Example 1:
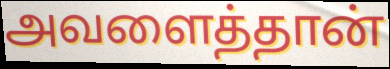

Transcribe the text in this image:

அவளைத்தான்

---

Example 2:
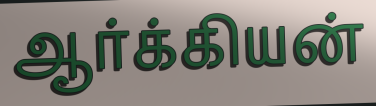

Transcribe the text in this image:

ஆர்க்கியன்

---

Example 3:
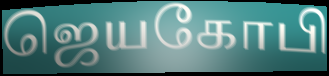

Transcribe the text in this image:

ஜெயகோபி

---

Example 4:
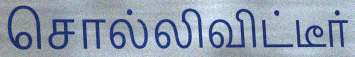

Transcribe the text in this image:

சொல்லிவிட்டீர்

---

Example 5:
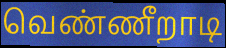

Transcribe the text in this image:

வெண்ணீறாடி